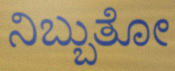
ನಿಬ್ಬುತೋ